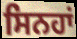
ਸਿਨਹਾਂ